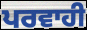
ਪਰਵਾਹੀ